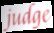
judge